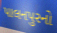
પાલનપુરનો